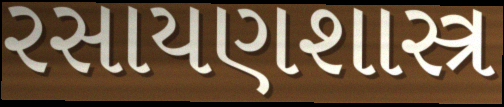
રસાયણશાસ્ત્ર